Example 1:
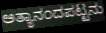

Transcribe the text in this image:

ಅತ್ಯಾನಂದಪಟ್ಟನು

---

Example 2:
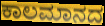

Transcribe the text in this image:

ಕಾಲಮಾನದ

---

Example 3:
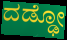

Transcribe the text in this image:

ದಡ್ಢೋ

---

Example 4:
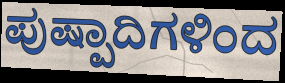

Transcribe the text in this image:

ಪುಷ್ಪಾದಿಗಳಿಂದ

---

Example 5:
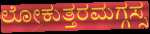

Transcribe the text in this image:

ಲೋಕುತ್ತರಮಗ್ಗಸ್ಸ